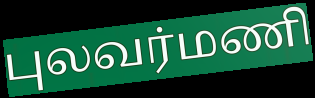
புலவர்மணி